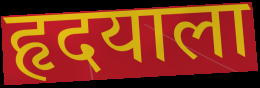
हृदयाला